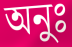
অনুঃ